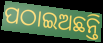
ପଠାଇଅଛନ୍ତି